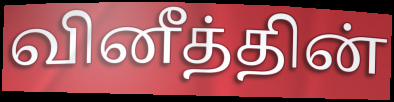
வினீத்தின்